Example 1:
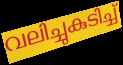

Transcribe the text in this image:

വലിച്ചുകുടിച്ച്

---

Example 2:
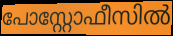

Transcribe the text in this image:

പോസ്റ്റോഫീസിൽ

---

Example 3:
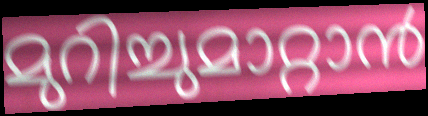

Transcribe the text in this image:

മുറിച്ചുമാറ്റാൻ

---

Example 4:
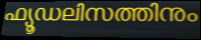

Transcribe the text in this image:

ഫ്യൂഡലിസത്തിനും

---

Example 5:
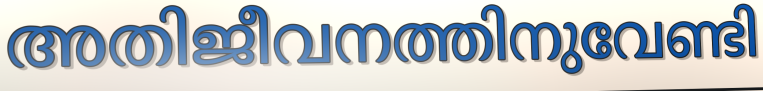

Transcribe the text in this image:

അതിജീവനത്തിനുവേണ്ടി